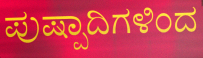
ಪುಷ್ಪಾದಿಗಳಿಂದ